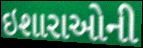
ઇશારાઓની